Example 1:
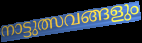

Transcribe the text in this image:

നാട്ടുത്സവങ്ങളും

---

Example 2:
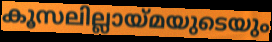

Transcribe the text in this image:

കൂസലില്ലായ്മയുടെയും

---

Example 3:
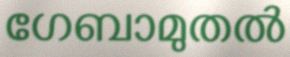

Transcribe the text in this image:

ഗേബാമുതൽ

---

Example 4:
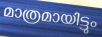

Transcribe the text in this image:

മാത്രമായിട്ടും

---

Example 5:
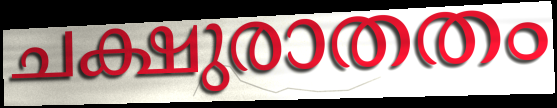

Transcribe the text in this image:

ചക്ഷുരാതതം